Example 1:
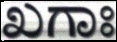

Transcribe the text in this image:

ಖಗಾಃ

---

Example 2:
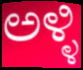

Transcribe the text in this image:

ಅಳ್ಳಿ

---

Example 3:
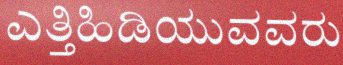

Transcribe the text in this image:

ಎತ್ತಿಹಿಡಿಯುವವರು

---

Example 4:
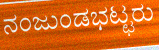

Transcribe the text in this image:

ನಂಜುಂಡಭಟ್ಟರು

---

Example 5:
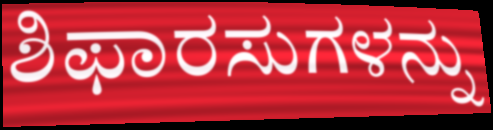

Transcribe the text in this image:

ಶಿಫಾರಸುಗಳನ್ನು